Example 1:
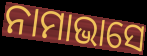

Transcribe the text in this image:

ନାମାଭାସେ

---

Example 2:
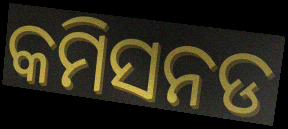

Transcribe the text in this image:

କମିସନଡ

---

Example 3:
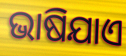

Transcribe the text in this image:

ଭାଷିଯାଏ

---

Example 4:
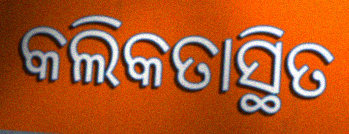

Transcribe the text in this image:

କଲିକତାସ୍ଥିତ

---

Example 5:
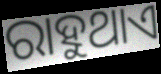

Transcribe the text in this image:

ରାହୁଥାଏ